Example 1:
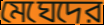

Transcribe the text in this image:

মেঘেদের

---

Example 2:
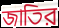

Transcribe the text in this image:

জাতির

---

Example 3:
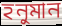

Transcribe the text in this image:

হনুমান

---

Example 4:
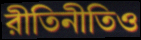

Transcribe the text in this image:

রীতিনীতিও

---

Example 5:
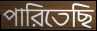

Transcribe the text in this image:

পারিতেছি